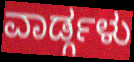
ವಾರ್ಡ್ಗಳು